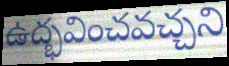
ఉద్భవించవచ్చని